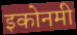
इकोनमी